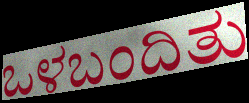
ಒಳಬಂದಿತು